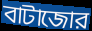
বাটাজোর